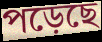
পড়েছে